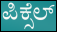
ಪಿಕ್ಸೆಲ್